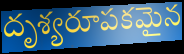
దృశ్యరూపకమైన